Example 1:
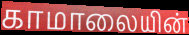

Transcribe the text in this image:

காமாலையின்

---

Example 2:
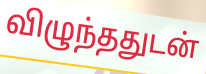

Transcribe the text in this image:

விழுந்ததுடன்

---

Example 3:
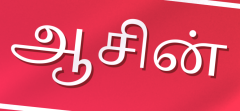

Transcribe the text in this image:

ஆசின்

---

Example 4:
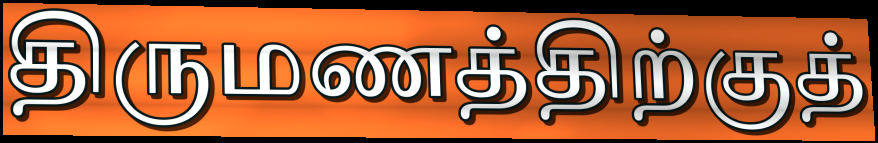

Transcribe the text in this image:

திருமணத்திற்குத்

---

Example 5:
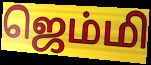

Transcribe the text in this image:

ஜெம்மி